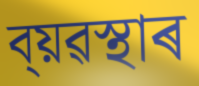
ব্য়ৱস্থাৰ